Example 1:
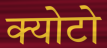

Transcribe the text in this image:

क्योटो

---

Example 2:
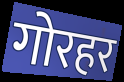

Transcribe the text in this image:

गोरहर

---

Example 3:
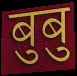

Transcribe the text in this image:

बुबु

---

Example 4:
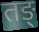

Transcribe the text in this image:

तङ्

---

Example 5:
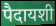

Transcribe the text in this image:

पैदायशी